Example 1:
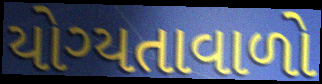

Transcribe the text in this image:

યોગ્યતાવાળો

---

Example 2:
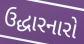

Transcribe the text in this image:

ઉદ્ધારનારો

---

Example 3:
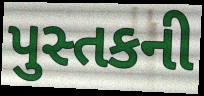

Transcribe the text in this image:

પુસ્તકની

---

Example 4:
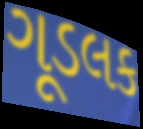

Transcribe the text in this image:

ગૂડલક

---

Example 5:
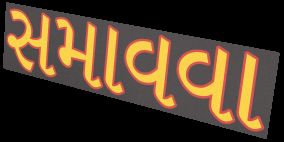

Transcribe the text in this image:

સમાવવા